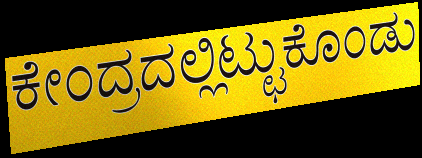
ಕೇಂದ್ರದಲ್ಲಿಟ್ಟುಕೊಂಡು